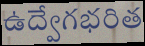
ఉద్వేగభరిత